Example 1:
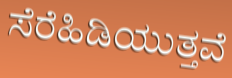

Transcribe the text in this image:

ಸೆರೆಹಿಡಿಯುತ್ತವೆ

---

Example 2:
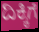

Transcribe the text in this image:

ದಿಕ್ಕಿಗೆ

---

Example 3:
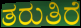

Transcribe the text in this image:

ತರುತಿರೆ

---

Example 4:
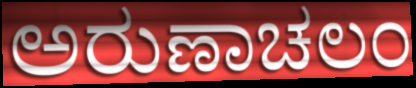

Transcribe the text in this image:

ಅರುಣಾಚಲಂ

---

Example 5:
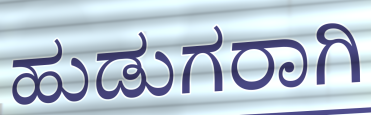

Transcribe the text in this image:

ಹುಡುಗರಾಗಿ